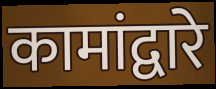
कामांद्वारे